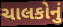
ચાલકોનું